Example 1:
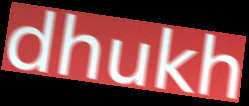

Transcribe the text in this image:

dhukh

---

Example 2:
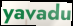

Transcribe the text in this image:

yavadu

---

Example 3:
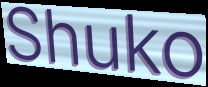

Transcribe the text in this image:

Shuko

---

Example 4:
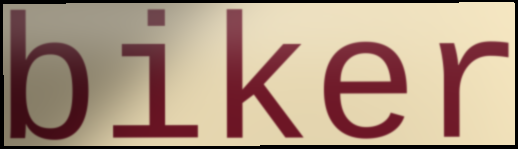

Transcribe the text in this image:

biker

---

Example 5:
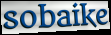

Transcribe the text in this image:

sobaike